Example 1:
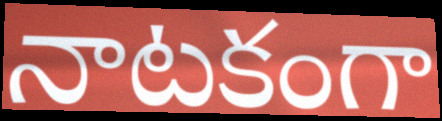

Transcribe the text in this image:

నాటకంగా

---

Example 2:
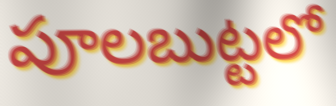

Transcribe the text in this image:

పూలబుట్టలో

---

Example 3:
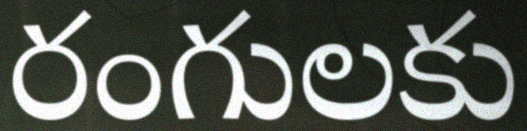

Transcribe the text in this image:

రంగులకు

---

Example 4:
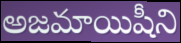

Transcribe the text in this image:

అజమాయిషీని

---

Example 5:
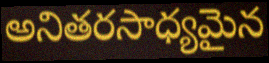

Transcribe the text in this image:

అనితరసాధ్యమైన